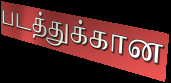
படத்துக்கான